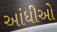
આંધીઓ